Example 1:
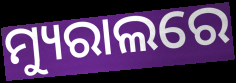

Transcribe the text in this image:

ମ୍ୟୁରାଲରେ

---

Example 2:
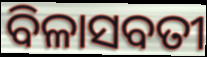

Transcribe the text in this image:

ବିଳାସବତୀ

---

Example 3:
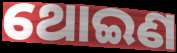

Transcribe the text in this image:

ଥୋଇଣ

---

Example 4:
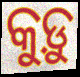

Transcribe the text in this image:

କୁଡ଼ୁ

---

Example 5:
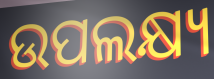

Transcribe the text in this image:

ଉପଲକ୍ଷ୍ୟ